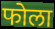
फोला